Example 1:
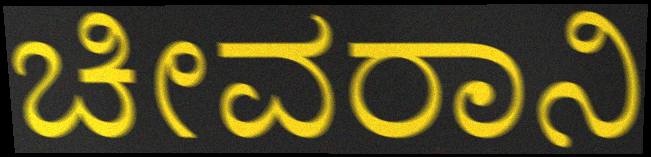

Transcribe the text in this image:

ಚೀವರಾನಿ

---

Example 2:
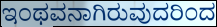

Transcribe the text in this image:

ಇಂಥವನಾಗಿರುವುದರಿಂದ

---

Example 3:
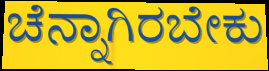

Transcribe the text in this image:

ಚೆನ್ನಾಗಿರಬೇಕು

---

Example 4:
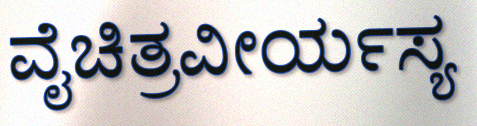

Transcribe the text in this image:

ವೈಚಿತ್ರವೀರ್ಯಸ್ಯ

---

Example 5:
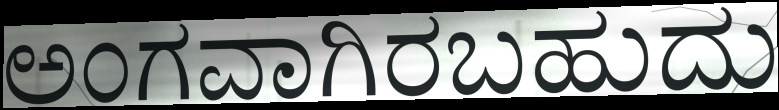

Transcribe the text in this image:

ಅಂಗವಾಗಿರಬಹುದು